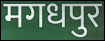
मगधपुर